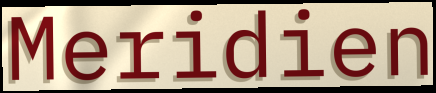
Meridien